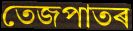
তেজপাতৰ